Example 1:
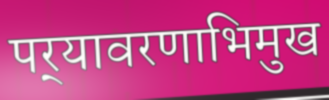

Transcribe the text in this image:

पर्यावरणाभिमुख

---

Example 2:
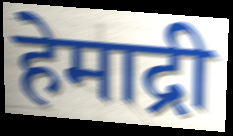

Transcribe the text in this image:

हेमाद्री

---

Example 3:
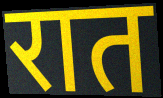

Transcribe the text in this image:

रात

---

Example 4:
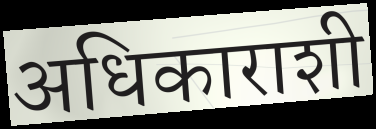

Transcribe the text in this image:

अधिकाराशी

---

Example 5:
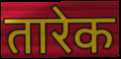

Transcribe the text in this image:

तारेक